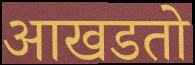
आखडतो